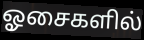
ஓசைகளில்